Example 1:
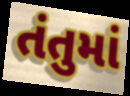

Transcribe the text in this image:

તંતુમાં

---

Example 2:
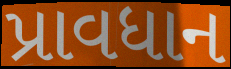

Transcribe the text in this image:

પ્રાવધાન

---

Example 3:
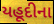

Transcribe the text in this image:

યહૂદીના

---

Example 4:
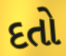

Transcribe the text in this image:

દતો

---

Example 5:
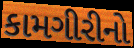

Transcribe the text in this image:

કામગીરીનો